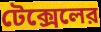
টেক্সেলের